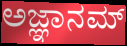
ಅಜ್ಞಾನಮ್